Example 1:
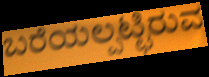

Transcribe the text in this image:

ಬರೆಯಲ್ಪಟ್ಟಿರುವ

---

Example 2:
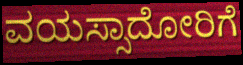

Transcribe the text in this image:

ವಯಸ್ಸಾದೋರಿಗೆ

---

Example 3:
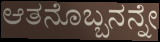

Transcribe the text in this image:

ಆತನೊಬ್ಬನನ್ನೇ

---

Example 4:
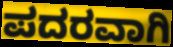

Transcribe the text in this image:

ಪದರವಾಗಿ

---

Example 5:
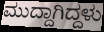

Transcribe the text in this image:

ಮುದ್ದಾಗಿದ್ದಳು